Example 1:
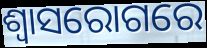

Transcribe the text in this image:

ଶ୍ଵାସରୋଗରେ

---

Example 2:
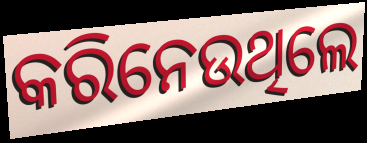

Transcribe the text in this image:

କରିନେଉଥିଲେ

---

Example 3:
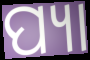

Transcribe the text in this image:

ପ୍ୟା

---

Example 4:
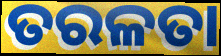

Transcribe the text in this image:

ତରଳତା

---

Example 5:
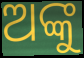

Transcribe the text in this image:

ଅଙ୍କୁ